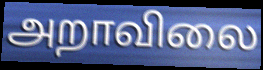
அறாவிலை